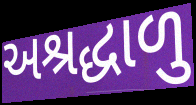
અશ્રદ્ધાળુ